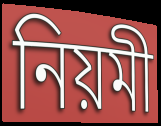
নিয়মী